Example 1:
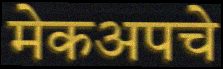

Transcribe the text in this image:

मेकअपचे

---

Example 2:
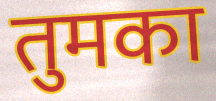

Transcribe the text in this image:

तुमका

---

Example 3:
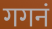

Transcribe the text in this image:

गगनं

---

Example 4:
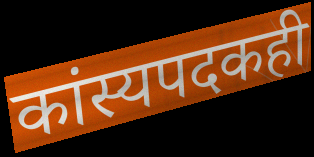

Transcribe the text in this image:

कांस्यपदकही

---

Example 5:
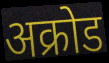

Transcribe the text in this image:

अक्रोड